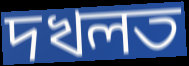
দখলত